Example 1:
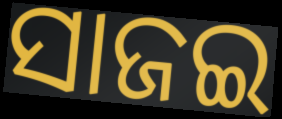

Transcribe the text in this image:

ସାଜଇ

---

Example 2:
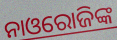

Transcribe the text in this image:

ନାଓରୋଜିଙ୍କ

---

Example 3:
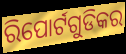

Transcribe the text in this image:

ରିପୋର୍ଟଗୁଡିକର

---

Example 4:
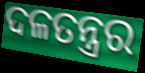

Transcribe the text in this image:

ଦଳତନ୍ତ୍ରର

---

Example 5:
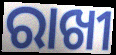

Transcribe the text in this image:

ରାଖୀ